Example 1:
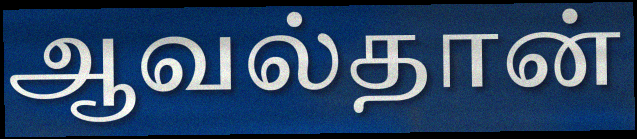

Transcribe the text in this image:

ஆவல்தான்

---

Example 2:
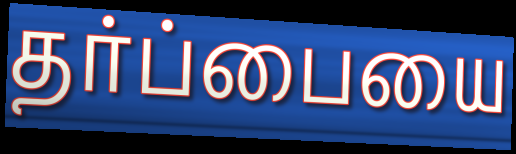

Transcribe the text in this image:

தர்ப்பையை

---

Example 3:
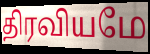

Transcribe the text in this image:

திரவியமே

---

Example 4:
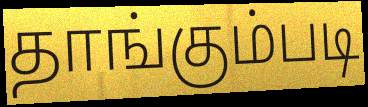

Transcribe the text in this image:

தாங்கும்படி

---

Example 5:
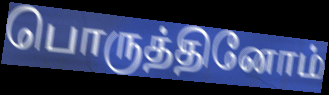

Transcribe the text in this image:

பொருத்தினோம்